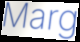
Marg